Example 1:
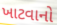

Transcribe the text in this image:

ખાટવાનો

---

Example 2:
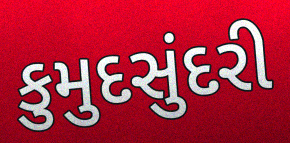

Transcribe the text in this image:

કુમુદસુંદરી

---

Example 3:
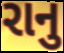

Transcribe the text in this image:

રાનુ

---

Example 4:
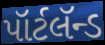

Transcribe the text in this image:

પૉર્ટલૅન્ડ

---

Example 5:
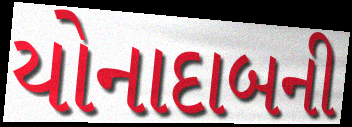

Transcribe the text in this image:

યોનાદાબની